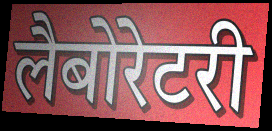
लैबोरेटरी